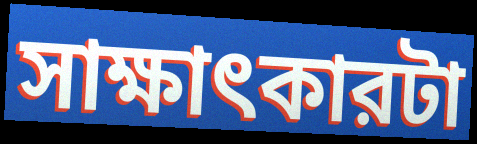
সাক্ষাৎকারটা